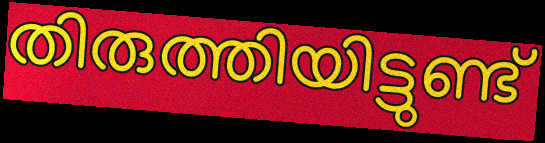
തിരുത്തിയിട്ടുണ്ട്